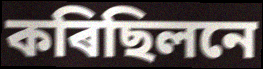
কৰিছিলনে